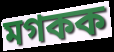
মগকক